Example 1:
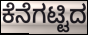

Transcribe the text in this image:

ಕೆನೆಗಟ್ಟಿದ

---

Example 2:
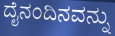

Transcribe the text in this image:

ದೈನಂದಿನವನ್ನು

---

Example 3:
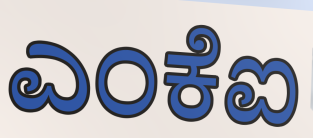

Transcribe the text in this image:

ಎಂಕೆಐ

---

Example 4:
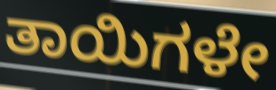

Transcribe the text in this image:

ತಾಯಿಗಳೇ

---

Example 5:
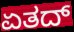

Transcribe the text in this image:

ಏತದ್